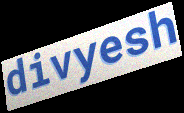
divyesh